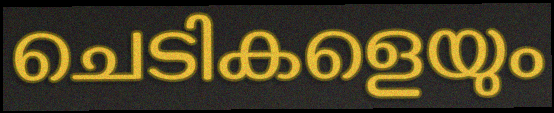
ചെടികളെയും